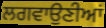
ਲਗਵਾਉਣੀਆਂ